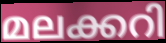
മലക്കറി